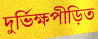
দুৰ্ভিক্ষপীড়িত